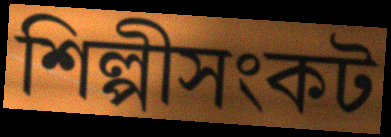
শিল্পীসংকট